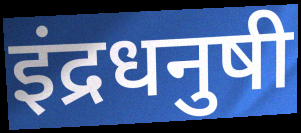
इंद्रधनुषी